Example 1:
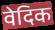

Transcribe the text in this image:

वेदिक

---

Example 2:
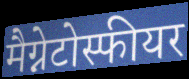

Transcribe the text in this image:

मैग्नेटोस्फीयर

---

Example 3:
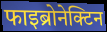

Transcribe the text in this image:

फाइब्रोनेक्टिन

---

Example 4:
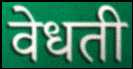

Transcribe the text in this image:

वेधती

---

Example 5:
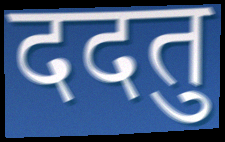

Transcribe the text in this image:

ददतु